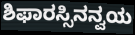
ಶಿಫಾರಸ್ಸಿನನ್ವಯ